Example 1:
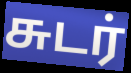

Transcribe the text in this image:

சுடர்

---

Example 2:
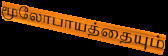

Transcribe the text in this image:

மூலோபாயத்தையும்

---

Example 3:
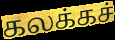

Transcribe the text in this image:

கலக்கச்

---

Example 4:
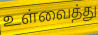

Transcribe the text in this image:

உள்வைத்து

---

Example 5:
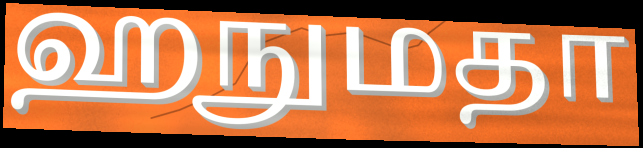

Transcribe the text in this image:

ஹநுமதா